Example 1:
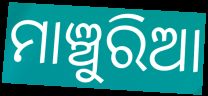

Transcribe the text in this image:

ମାଞ୍ଚୁରିଆ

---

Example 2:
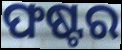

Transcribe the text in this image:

ଫଷ୍ଟର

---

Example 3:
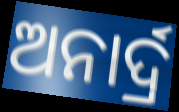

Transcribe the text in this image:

ଅନାର୍ଦ୍ର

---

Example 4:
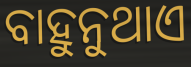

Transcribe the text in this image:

ବାହୁନୁଥାଏ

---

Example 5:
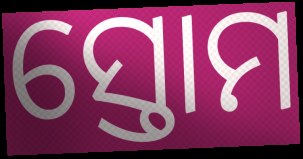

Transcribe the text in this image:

ସ୍ତୋମ